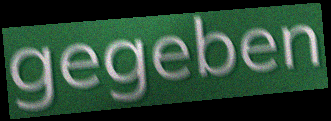
gegeben